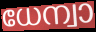
ധേന്വാ